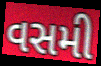
વસમી